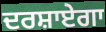
ਦਰਸ਼ਾਏਗਾ